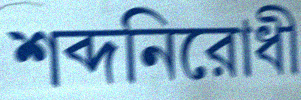
শব্দনিরোধী